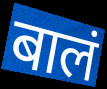
बालं